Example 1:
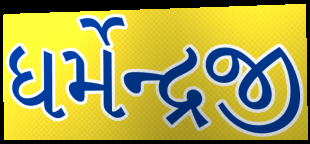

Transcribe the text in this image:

ધર્મેન્દ્રજી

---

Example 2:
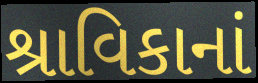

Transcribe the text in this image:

શ્રાવિકાનાં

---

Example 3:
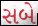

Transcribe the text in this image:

સબે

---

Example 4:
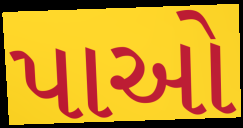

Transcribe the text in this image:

પાઓ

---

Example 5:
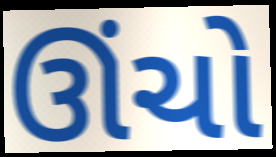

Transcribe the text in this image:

ઊંચો